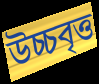
উচ্চবৃত্ত